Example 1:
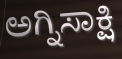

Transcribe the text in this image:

ಅಗ್ನಿಸಾಕ್ಷಿ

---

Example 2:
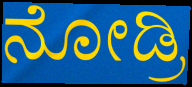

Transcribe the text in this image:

ನೋಡ್ರಿ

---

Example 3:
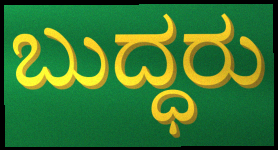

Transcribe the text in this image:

ಬುದ್ಧರು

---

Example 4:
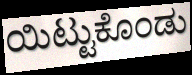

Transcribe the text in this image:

ಯಿಟ್ಟುಕೊಂಡು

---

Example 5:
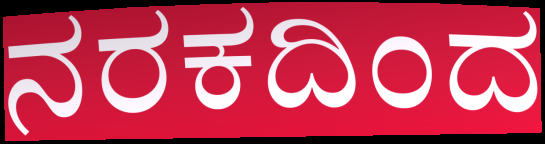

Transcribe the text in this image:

ನರಕದಿಂದ